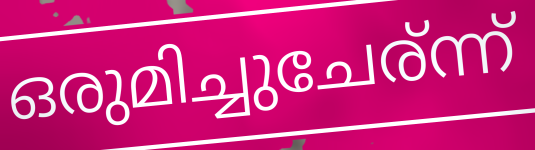
ഒരുമിച്ചുചേര്ന്ന്